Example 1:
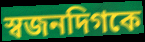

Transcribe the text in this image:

স্বজনদিগকে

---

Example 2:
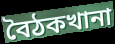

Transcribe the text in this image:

বৈঠকখানা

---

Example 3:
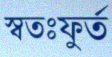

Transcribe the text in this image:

স্বতঃফুর্ত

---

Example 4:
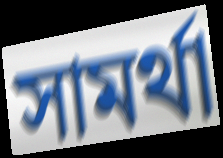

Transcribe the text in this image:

সামর্থা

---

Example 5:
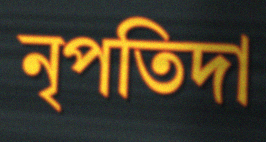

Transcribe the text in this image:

নৃপতিদা